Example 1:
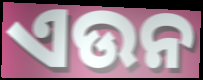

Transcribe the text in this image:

ଏଉନ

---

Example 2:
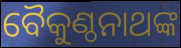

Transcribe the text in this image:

ବୈକୁଣ୍ଠନାଥଙ୍କ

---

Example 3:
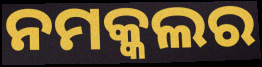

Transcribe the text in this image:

ନମକ୍କଲର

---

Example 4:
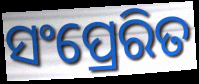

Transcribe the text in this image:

ସଂପ୍ରେରିତ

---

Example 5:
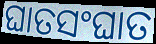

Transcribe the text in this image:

ଘାତସଂଘାତ